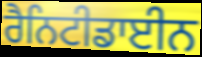
ਰੈਨਿਟੀਡਾਈਨ